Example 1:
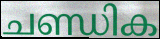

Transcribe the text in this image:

ചണ്ഡിക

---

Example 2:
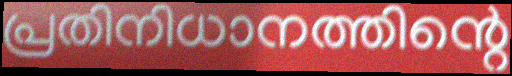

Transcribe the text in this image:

പ്രതിനിധാനത്തിന്റെ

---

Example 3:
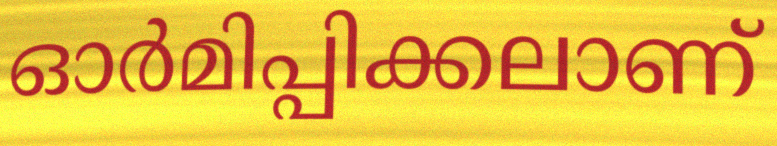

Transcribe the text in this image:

ഓർമിപ്പിക്കലാണ്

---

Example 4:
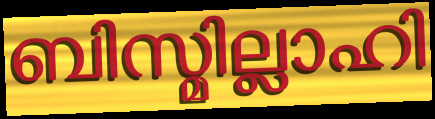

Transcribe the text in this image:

ബിസ്മില്ലാഹി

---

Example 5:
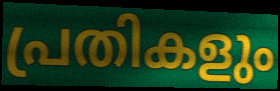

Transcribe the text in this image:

പ്രതികളും